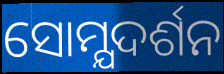
ସୋମ୍ଯଦର୍ଶନ